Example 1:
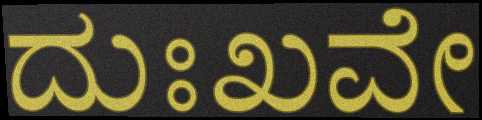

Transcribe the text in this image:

ದುಃಖವೇ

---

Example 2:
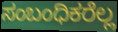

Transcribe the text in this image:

ಸಂಬಂಧಿಕರೆಲ್ಲ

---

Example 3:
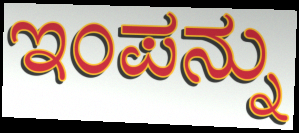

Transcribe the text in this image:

ಇಂಪನ್ನು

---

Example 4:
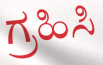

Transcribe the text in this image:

ಗ್ರಹಿಸಿ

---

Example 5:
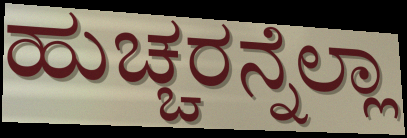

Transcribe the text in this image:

ಹುಚ್ಚರನ್ನೆಲ್ಲಾ